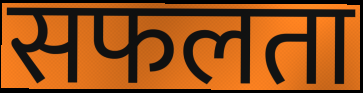
सफलता